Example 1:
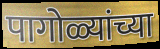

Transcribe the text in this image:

पागोळ्यांच्या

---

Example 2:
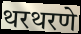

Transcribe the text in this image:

थरथरणे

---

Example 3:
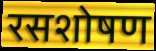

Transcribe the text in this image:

रसशोषण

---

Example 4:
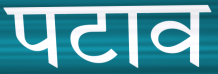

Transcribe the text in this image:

पटाव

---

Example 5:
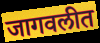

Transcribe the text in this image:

जागवलीत